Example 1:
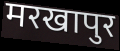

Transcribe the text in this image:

मरखापुर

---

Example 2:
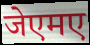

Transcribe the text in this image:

जेएमए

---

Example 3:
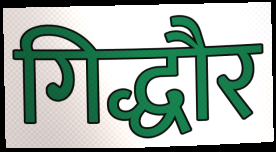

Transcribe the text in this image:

गिद्धौर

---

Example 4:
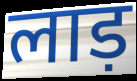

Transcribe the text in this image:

लाड़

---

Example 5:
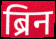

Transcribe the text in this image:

ब्रिन